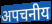
अपचनीय